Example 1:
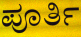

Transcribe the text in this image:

ಪೂರ್ತಿ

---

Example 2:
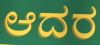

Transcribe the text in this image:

ಆದರ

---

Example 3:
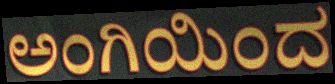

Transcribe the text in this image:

ಅಂಗಿಯಿಂದ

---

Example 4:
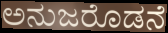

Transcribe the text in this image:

ಅನುಜರೊಡನೆ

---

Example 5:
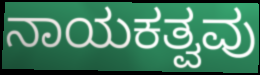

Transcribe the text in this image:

ನಾಯಕತ್ವವು